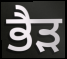
ਭੈੜ